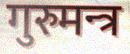
गुरुमन्त्र